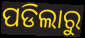
ପଡିଲାରୁ